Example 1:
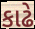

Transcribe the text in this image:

કાઢે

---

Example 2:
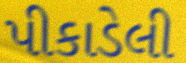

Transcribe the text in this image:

પીકાડેલી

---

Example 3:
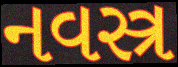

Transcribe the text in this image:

નવસ્ત્ર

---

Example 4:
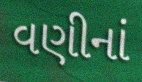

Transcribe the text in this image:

વણીનાં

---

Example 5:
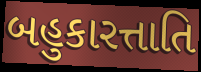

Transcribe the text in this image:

બહુકારત્તાતિ